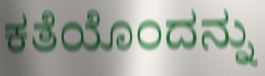
ಕತೆಯೊಂದನ್ನು